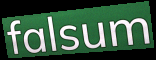
falsum